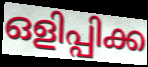
ഒളിപ്പിക്ക